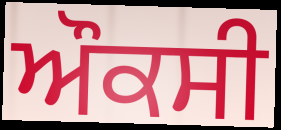
ਔਕਸੀ